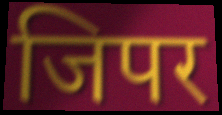
जिपर